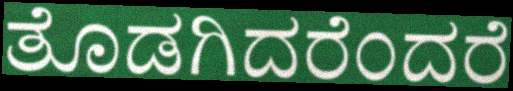
ತೊಡಗಿದರೆಂದರೆ